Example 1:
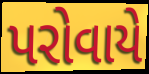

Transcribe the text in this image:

પરોવાયે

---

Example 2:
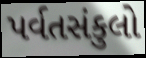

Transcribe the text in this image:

પર્વતસંકુલો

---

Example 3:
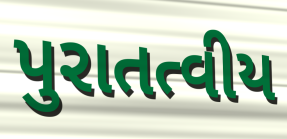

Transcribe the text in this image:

પુરાતત્વીય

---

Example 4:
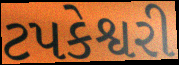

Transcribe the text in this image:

ટપકેશ્વરી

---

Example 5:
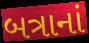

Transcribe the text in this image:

બત્રાનાં